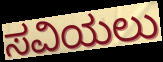
ಸವಿಯಲು